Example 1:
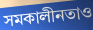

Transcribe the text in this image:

সমকালীনতাও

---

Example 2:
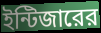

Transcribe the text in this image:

ইন্টিজারের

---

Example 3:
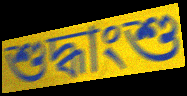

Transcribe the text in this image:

শুদ্ধাংশু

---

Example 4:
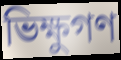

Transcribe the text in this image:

ভিক্ষুগণ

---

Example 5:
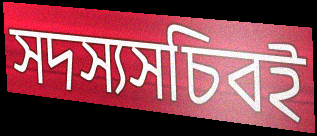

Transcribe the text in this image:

সদস্যসচিবই